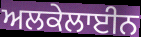
ਅਲਕੇਲਾਈਨ